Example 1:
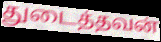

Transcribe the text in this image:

துடைத்தவன்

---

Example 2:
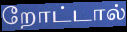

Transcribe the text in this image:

றோட்டால்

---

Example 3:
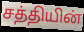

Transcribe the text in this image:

சத்தியின்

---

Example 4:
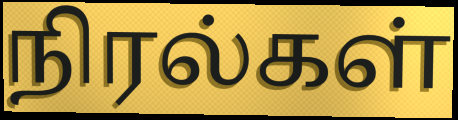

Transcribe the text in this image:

நிரல்கள்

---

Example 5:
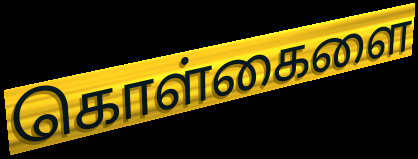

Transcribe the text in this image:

கொள்கைளை